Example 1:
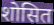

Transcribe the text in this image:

शोसित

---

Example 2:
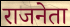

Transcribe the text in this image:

राजनेता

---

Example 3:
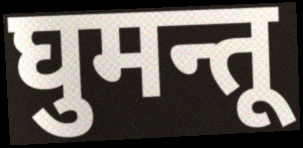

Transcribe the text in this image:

घुमन्तू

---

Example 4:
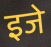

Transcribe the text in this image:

इजे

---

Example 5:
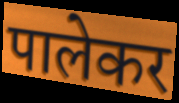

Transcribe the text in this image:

पालेकर